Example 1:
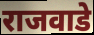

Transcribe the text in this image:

राजवाडे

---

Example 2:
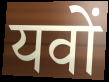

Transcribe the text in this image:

यवों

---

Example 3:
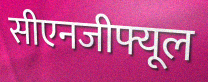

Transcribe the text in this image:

सीएनजीफ्यूल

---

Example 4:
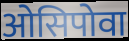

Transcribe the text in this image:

ओसिपोवा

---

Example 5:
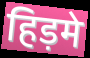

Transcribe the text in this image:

हिड़मे